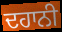
ਦਹਾਨੀ